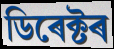
ডিৰেক্টৰ